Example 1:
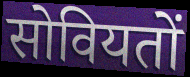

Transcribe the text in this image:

सोवियतों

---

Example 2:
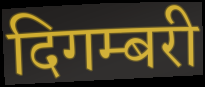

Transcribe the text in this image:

दिगम्बरी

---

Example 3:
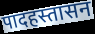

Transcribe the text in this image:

पादहस्तासन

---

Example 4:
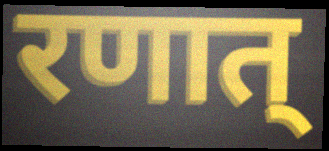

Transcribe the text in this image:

रणात्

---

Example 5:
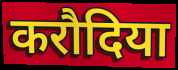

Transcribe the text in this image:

करौदिया